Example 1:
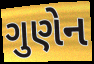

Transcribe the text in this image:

ગુણેન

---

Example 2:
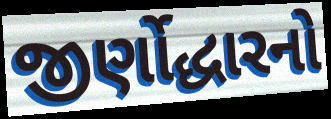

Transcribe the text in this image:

જીર્ણોદ્ધારનો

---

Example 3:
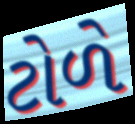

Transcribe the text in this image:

ટોળે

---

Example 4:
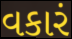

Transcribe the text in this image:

વકારં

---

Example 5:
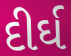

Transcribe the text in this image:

દીર્ઘ